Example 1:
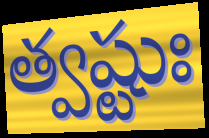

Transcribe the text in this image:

త్వష్టుః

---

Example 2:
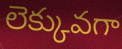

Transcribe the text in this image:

లెక్కువగా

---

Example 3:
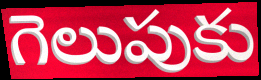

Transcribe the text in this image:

గెలుపుకు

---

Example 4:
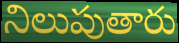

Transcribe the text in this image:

నిలుపుతారు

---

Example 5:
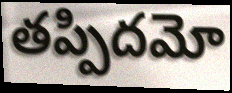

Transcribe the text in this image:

తప్పిదమో